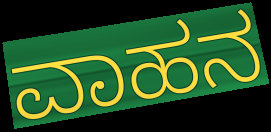
ವಾಹನ